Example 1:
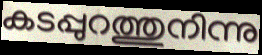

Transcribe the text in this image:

കടപ്പുറത്തുനിന്നു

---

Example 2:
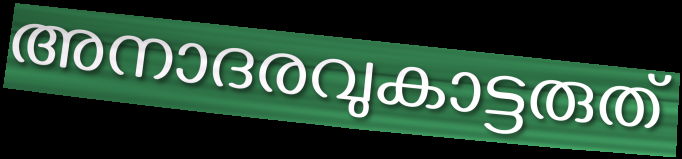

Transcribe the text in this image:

അനാദരവുകാട്ടരുത്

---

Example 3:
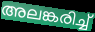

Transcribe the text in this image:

അലങ്കരിച്ച്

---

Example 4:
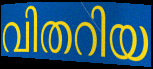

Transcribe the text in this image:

വിതറിയ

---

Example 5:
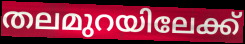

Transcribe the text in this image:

തലമുറയിലേക്ക്